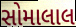
સોમાલાલ